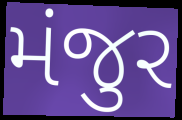
મંજુર